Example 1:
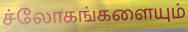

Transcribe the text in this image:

ச்லோகங்களையும்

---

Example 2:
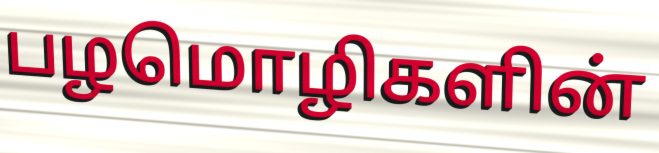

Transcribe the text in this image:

பழமொழிகளின்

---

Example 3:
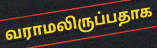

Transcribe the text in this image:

வராமலிருப்பதாக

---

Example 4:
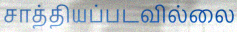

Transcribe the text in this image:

சாத்தியப்படவில்லை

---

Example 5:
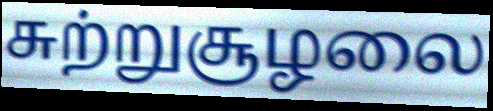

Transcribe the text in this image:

சுற்றுசூழலை